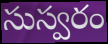
సుస్వరం